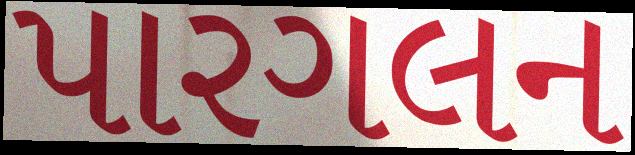
પારગલન